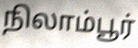
நிலாம்பூர்